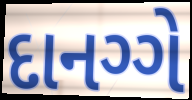
દાનગ્ગે